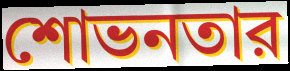
শোভনতার